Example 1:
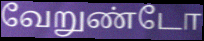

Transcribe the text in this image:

வேறுண்டோ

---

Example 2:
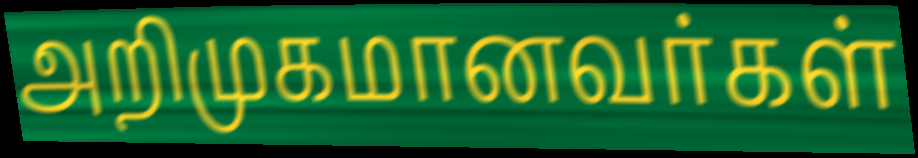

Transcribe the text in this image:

அறிமுகமானவர்கள்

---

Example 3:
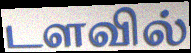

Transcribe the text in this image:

டளவில்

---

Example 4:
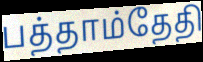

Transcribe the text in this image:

பத்தாம்தேதி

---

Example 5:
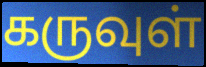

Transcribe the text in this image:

கருவுள்